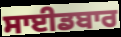
ਸਾਈਡਬਾਰ